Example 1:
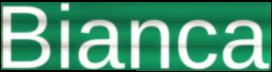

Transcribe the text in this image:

Bianca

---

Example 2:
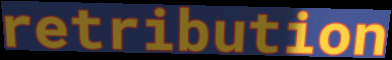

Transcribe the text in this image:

retribution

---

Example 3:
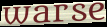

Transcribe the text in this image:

warse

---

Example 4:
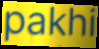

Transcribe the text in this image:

pakhi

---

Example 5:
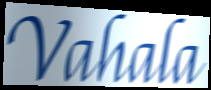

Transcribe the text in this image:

Vahala